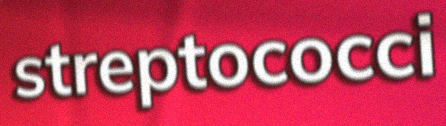
streptococci